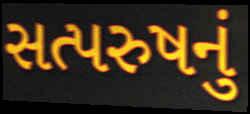
સત્પરુષનું